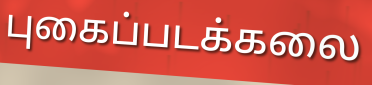
புகைப்படக்கலை